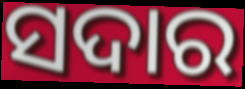
ସଦାର